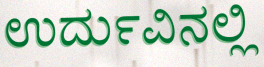
ಉರ್ದುವಿನಲ್ಲಿ